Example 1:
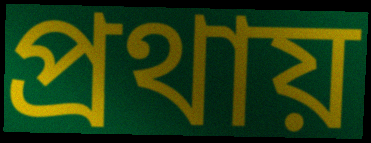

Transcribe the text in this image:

প্রথায়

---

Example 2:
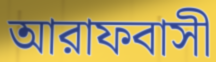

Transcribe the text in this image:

আরাফবাসী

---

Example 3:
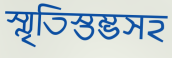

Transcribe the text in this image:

স্মৃতিস্তম্ভসহ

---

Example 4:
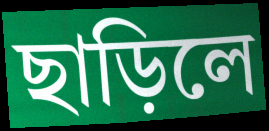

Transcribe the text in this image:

ছাড়িলে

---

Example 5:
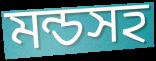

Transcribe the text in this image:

মন্ডসহ